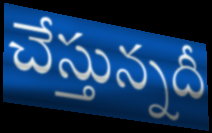
చేస్తున్నదీ